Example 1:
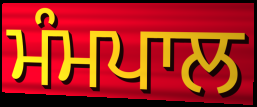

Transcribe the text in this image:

ਮੰਮਪਾਲ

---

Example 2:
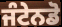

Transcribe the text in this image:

ਜੰਟੇਨਡੋ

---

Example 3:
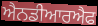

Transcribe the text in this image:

ਐਨਡੀਆਰਐਫ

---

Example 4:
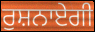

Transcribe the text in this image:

ਰੁਸ਼ਨਾਏਗੀ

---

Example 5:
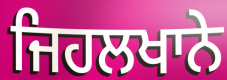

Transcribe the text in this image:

ਜਿਹਲਖਾਨੇ